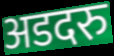
अडदरु